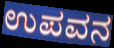
ಉಪವನ